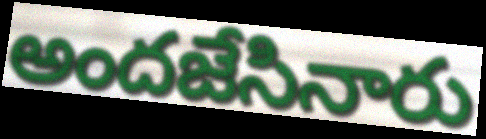
అందజేసినారు